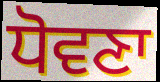
ਧੋਵਣਾ